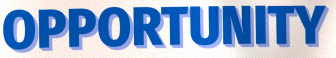
OPPORTUNITY